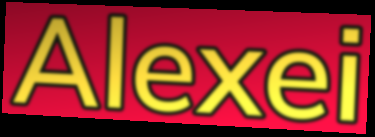
Alexei